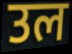
उल